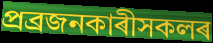
প্ৰব্ৰজনকাৰীসকলৰ